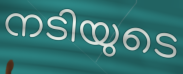
നടിയുടെ